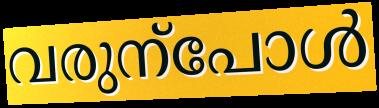
വരുന്പോൾ